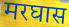
मरघास